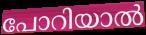
പോറിയാൽ